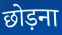
छोड़ना